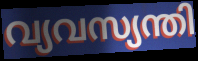
വ്യവസ്യന്തി